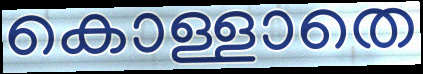
കൊള്ളാതെ